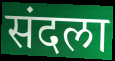
संदला